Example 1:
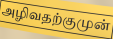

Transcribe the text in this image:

அழிவதற்குமுன்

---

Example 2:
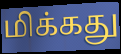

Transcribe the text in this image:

மிக்கது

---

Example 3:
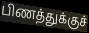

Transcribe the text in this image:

பிணத்துக்குச்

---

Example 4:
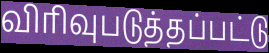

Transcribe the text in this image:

விரிவுபடுத்தப்பட்டு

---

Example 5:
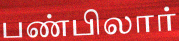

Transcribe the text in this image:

பண்பிலார்